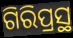
ଗିରିପ୍ରସ୍ଥ